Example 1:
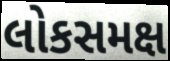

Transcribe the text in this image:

લોકસમક્ષ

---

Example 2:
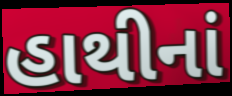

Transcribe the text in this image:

હાથીનાં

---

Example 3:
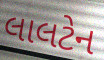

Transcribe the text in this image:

લાલટેન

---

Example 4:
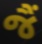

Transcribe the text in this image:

જૈં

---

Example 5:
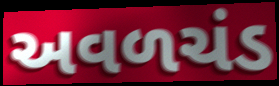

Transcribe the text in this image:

અવળચંડ